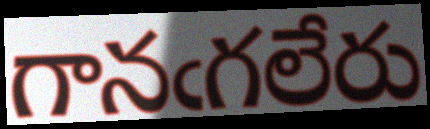
గానఁగలేరు